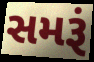
સમરૂં